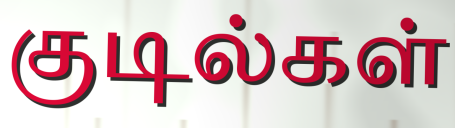
குடில்கள்